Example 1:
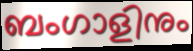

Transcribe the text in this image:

ബംഗാളിനും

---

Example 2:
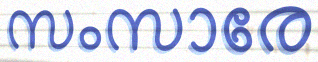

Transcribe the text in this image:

സംസാരേ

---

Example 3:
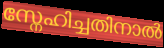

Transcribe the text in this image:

സ്നേഹിച്ചതിനാൽ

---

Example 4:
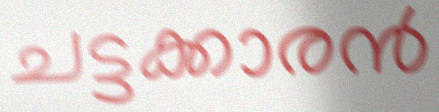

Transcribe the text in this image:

ചട്ടക്കാരൻ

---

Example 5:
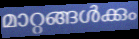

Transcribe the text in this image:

മാറ്റങ്ങൾക്കും